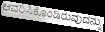
ಆವರಿಸಿಕೊಂಡಿರುವುದನ್ನು